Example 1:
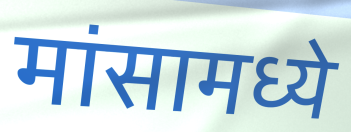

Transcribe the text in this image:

मांसामध्ये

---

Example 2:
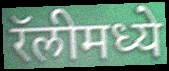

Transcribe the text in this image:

रॅलीमध्ये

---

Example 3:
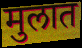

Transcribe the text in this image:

मुलात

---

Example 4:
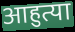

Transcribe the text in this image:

आहुत्या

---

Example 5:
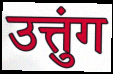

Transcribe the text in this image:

उत्तुंग